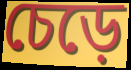
চেড়ে